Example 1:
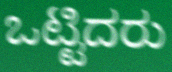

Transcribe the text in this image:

ಒಟ್ಟಿದರು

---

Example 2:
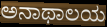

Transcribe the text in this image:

ಅನಾಥಾಲಯ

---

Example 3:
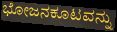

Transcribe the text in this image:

ಭೋಜನಕೂಟವನ್ನು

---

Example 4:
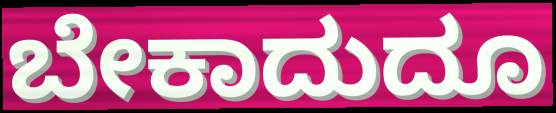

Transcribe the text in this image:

ಬೇಕಾದುದೂ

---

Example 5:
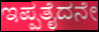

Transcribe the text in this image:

ಇಪ್ಪತೈದನೇ